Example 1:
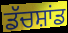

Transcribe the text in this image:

ਡੱਚਸ਼ਾਂਡ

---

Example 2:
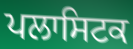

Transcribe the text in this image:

ਪਲਾਸਿਟਕ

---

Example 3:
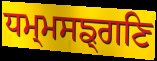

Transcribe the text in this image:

ਧਮ੍ਮਸਙ੍ਗਣਿ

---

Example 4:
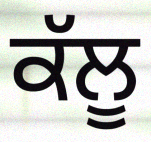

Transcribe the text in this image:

ਕੱਲੂ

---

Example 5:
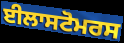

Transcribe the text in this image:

ਈਲਾਸਟੋਮਰਸ